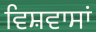
ਵਿਸ਼ਵਾਸਾਂ